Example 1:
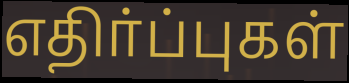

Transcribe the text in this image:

எதிர்ப்புகள்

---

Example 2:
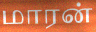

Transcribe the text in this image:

மாரன்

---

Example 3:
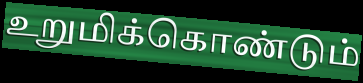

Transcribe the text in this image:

உறுமிக்கொண்டும்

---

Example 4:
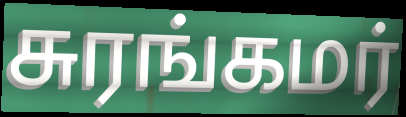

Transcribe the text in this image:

சுரங்கமர்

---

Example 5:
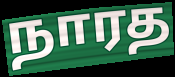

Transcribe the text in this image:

நாரத